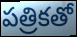
పత్రికతో